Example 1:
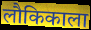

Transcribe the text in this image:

लौकिकाला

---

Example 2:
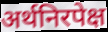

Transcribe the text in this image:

अर्थनिरपेक्ष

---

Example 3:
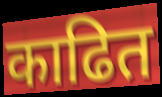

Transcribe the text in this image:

काढित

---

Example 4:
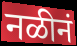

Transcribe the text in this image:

नळीनं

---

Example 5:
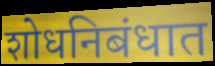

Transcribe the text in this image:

शोधनिबंधात